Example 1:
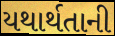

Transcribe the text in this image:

યથાર્થતાની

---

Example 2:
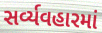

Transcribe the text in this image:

સર્વ્યવહારમાં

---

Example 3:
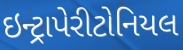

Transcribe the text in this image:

ઇન્ટ્રાપેરીટોનિયલ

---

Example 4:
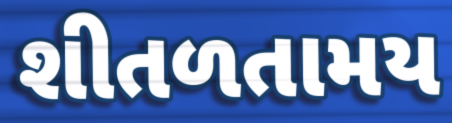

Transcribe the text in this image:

શીતળતામય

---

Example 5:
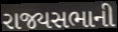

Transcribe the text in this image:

રાજ્યસભાની